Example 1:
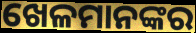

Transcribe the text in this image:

ଖେଳମାନଙ୍କର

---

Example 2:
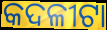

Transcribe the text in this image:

କଦଳୀଟା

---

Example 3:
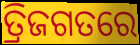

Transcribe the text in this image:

ତ୍ରିଜଗତରେ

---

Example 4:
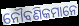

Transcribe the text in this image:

ନୌବଣିକମାନେ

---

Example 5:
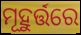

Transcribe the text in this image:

ମୂହୁର୍ତ୍ତରେ